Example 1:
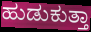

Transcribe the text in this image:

ಹುಡುಕುತ್ತಾ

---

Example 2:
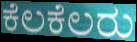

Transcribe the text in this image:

ಕೆಲಕೆಲರು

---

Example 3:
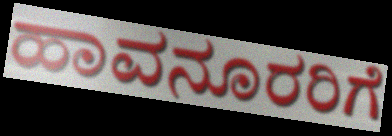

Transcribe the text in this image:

ಹಾವನೂರರಿಗೆ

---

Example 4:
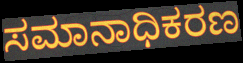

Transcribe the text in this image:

ಸಮಾನಾಧಿಕರಣ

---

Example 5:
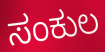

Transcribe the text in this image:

ಸಂಕುಲ